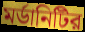
মর্ডানিটির